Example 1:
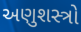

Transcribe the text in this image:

અણુશસ્ત્રો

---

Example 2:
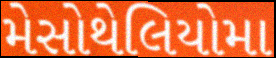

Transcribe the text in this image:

મેસોથેલિયોમા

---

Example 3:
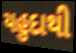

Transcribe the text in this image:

યહુદાથી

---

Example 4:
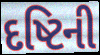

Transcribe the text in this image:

દષ્ટિની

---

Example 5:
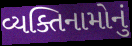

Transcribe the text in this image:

વ્યક્તિનામોનું